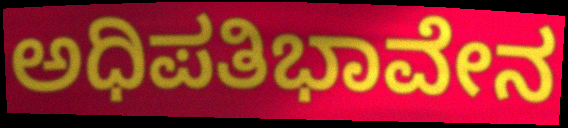
ಅಧಿಪತಿಭಾವೇನ